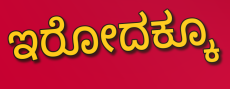
ಇರೋದಕ್ಕೂ